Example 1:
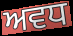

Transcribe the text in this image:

ਅਵਧ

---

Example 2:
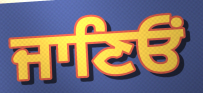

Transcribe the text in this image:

ਜਾਣਿਓਂ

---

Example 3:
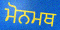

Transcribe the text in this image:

ਮੋਨਮਥ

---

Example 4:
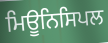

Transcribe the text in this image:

ਮਿਊਨਿਸਿਪਲ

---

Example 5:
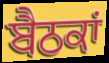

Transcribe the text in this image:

ਬੈਠਕਾਂ